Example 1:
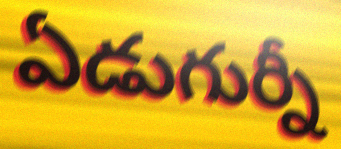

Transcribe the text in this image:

ఏడుగుర్నీ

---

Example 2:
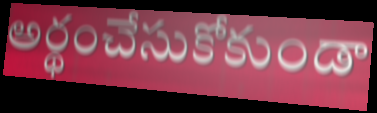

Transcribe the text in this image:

అర్థంచేసుకోకుండా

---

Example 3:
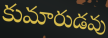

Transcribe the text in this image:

కుమారుడవు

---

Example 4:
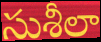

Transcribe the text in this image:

సుశీలా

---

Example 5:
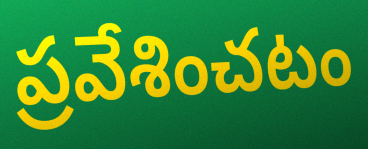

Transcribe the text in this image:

ప్రవేశించటం